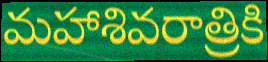
మహాశివరాత్రికి